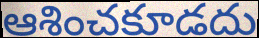
ఆశించకూడదు